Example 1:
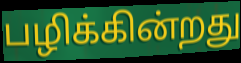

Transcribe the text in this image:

பழிக்கின்றது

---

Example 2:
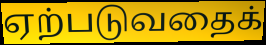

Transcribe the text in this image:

ஏற்படுவதைக்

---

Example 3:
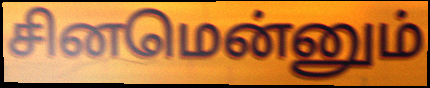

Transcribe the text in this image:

சினமென்னும்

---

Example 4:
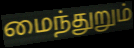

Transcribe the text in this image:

மைந்துறும்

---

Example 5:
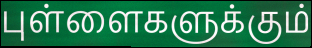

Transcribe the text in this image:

புள்ளைகளுக்கும்